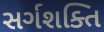
સર્ગશક્તિ